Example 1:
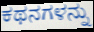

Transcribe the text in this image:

ಕಥನಗಳನ್ನು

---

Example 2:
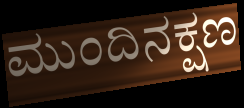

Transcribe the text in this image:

ಮುಂದಿನಕ್ಷಣ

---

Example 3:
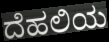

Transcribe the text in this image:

ದೆಹಲಿಯ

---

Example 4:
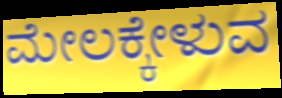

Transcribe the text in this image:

ಮೇಲಕ್ಕೇಳುವ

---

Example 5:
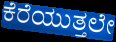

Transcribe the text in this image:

ಕೆರೆಯುತ್ತಲೇ